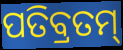
ପତିବ୍ରତମ୍